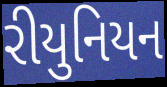
રીયુનિયન